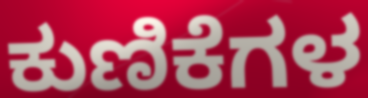
ಕುಣಿಕೆಗಳ